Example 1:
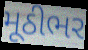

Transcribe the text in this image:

મૂઠીભર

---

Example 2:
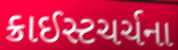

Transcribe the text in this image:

ક્રાઈસ્ટચર્ચના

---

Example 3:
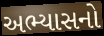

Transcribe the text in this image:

અભ્યાસનો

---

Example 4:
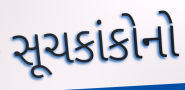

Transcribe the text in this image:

સૂચકાંકોનો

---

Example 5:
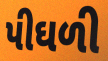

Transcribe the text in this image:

પીઘળી